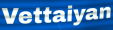
Vettaiyan